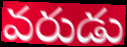
వరుడు